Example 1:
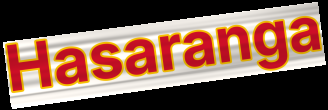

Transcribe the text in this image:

Hasaranga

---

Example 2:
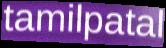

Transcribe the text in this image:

tamilpatal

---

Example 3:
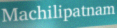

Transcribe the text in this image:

Machilipatnam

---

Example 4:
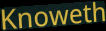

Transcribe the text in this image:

Knoweth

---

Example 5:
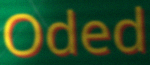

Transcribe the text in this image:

Oded